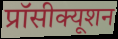
प्रॉसीक्यूशन